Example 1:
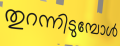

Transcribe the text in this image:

തുറന്നിടുമ്പോൾ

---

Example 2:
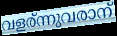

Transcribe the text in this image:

വളര്ന്നുവരാന്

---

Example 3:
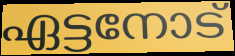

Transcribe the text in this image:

ഏട്ടനോട്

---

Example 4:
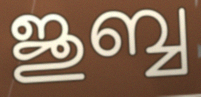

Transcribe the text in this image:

ജുബ്ബ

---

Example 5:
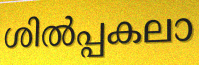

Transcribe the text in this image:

ശിൽപ്പകലാ